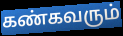
கண்கவரும்